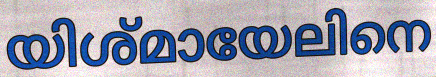
യിശ്മായേലിനെ